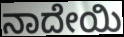
ನಾದೇಯಿ